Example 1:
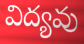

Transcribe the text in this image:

విద్యవు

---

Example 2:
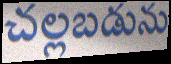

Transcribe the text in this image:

చల్లబడును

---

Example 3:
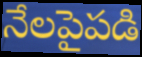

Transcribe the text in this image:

నేలపైపడి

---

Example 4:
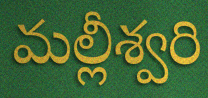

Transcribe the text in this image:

మల్లీశ్వరి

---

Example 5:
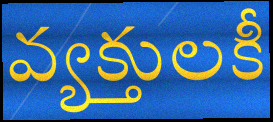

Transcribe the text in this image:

వ్యక్తులకీ